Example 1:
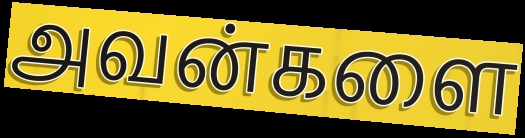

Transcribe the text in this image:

அவன்களை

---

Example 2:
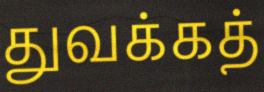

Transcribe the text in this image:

துவக்கத்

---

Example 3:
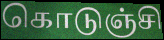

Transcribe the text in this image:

கொடுஞ்சி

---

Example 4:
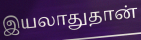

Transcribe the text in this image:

இயலாதுதான்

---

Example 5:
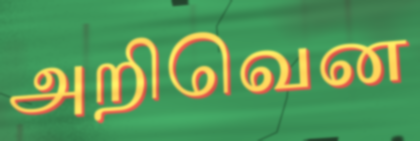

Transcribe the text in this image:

அறிவென